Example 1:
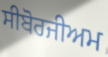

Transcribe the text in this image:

ਸੀਬੋਰਜੀਅਮ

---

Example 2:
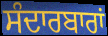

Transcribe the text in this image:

ਸੰਦਾਰਬਾਰਾਂ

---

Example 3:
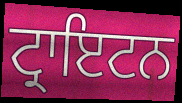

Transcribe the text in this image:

ਟ੍ਰਾਇਟਨ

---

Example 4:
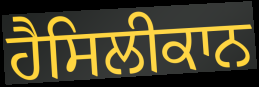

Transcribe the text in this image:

ਹੈਸਿਲੀਕਾਨ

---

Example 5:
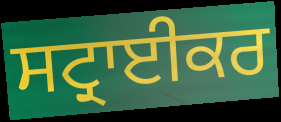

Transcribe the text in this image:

ਸਟ੍ਰਾਈਕਰ